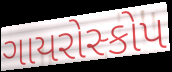
ગાયરોસ્કોપ